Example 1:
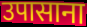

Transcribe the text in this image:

उपासाना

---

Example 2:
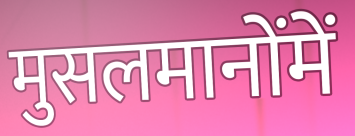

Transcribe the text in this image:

मुसलमानोंमें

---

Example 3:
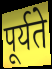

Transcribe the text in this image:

पूर्यते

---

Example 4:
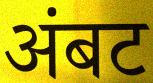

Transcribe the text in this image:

अंबट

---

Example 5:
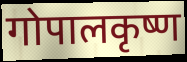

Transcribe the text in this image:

गोपालकृष्ण